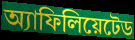
অ্যাফিলিয়েটেড